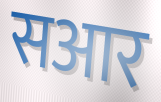
सआर